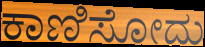
ಕಾಣಿಸೋದು